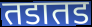
तडातड